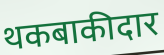
थकबाकीदार